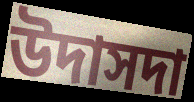
উদাসদা